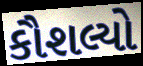
કૌશલ્યો